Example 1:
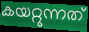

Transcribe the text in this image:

കയറ്റുന്നത്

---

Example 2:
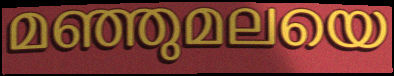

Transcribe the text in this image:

മഞ്ഞുമലയെ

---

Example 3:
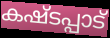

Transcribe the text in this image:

കഷ്ടപ്പാട്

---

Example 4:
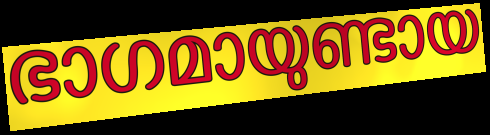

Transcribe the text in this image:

ഭാഗമായുണ്ടായ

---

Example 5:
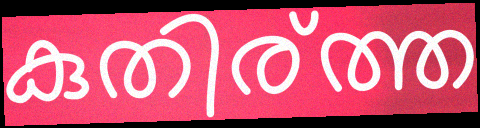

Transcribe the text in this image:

കുതിര്ത്ത